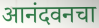
आनंदवनचा